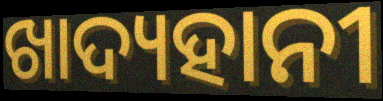
ଖାଦ୍ୟହାନୀ